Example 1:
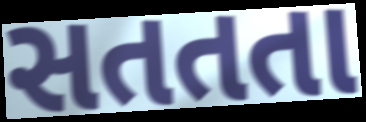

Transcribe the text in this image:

સતતતા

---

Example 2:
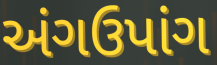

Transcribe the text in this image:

અંગઉપાંગ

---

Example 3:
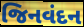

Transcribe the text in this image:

જિનવંદન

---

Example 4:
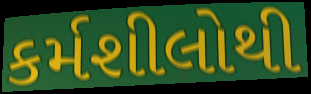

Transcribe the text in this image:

કર્મશીલોથી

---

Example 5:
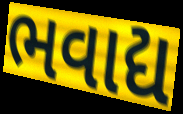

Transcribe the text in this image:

ભવાદ્ય